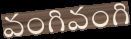
వంగివంగి